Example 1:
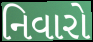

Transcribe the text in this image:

નિવારો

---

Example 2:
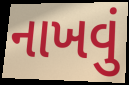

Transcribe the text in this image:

નાખવું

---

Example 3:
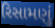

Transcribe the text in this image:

રિસામણું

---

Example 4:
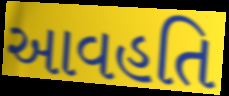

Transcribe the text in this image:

આવહતિ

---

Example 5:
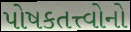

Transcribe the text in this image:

પોષકતત્ત્વોનો